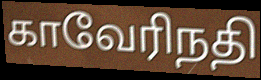
காவேரிநதி